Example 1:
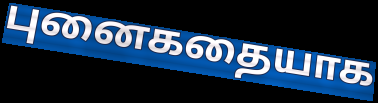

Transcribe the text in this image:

புனைகதையாக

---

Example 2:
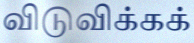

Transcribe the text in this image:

விடுவிக்கக்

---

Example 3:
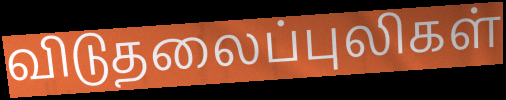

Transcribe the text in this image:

விடுதலைப்புலிகள்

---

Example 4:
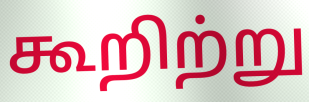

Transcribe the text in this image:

கூறிற்று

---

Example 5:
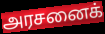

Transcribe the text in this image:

அரசனைக்